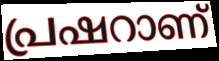
പ്രഷറാണ്